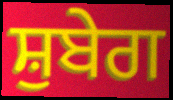
ਸ਼ੁਬੇਗ